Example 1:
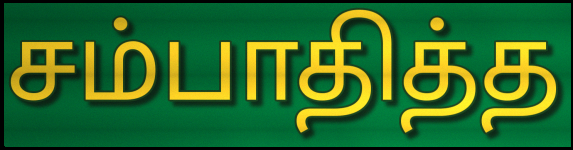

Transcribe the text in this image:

சம்பாதித்த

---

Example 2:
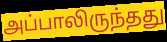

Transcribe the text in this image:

அப்பாலிருந்தது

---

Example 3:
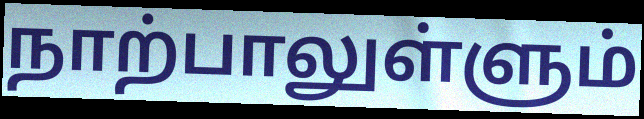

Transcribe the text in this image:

நாற்பாலுள்ளும்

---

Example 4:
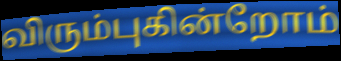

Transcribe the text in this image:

விரும்புகின்றோம்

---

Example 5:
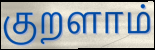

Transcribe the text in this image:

குறளாம்